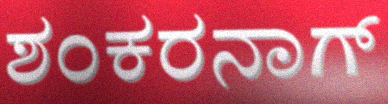
ಶಂಕರನಾಗ್